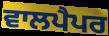
ਵਾਲਪੈਪਰ